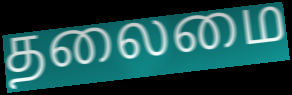
தலைமை